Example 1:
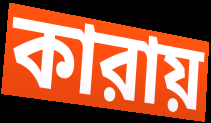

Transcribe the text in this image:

কারায়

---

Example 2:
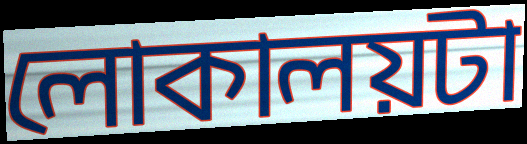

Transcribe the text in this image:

লোকালয়টা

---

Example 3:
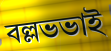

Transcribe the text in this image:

বল্লভভাই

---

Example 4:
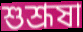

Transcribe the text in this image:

শুশ্রূষা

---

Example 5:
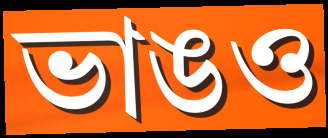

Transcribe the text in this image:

ভাঙও